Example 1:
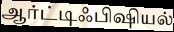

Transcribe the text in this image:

ஆர்ட்டிஃபிஷியல்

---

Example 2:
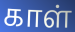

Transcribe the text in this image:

காள்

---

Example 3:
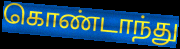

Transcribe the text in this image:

கொண்டாந்து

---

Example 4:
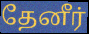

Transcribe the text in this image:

தேனீர்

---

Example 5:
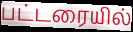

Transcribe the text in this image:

பட்டரையில்